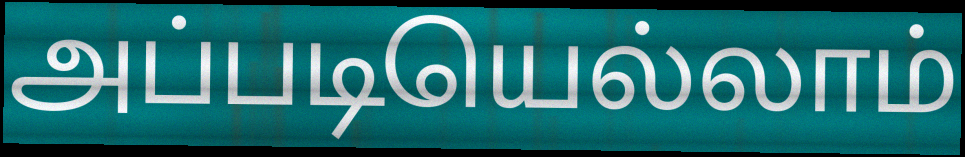
அப்படியெல்லாம்